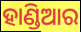
ହାଣ୍ଡିଆର